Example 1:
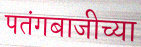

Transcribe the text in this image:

पतंगबाजीच्या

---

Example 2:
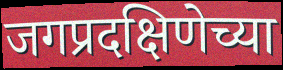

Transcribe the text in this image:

जगप्रदक्षिणेच्या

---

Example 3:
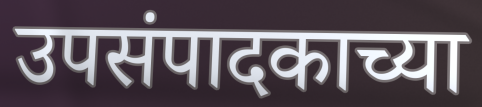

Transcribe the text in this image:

उपसंपादकाच्या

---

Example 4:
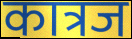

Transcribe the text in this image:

कात्रज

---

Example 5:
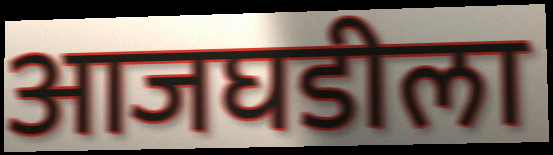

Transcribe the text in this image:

आजघडीला